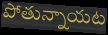
పోతున్నాయట